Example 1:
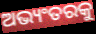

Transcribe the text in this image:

ଅଭ୍ୟଂତରକୁ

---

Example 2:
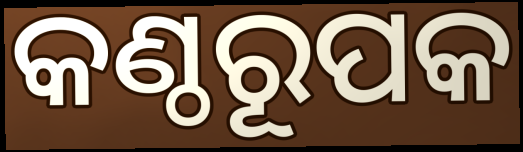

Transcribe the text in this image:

କଣ୍ଠରୂପକ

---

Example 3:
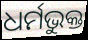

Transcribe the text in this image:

ଧର୍ମଭୁକ୍ତ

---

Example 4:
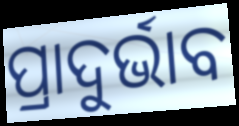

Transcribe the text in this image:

ପ୍ରାଦୁର୍ଭାବ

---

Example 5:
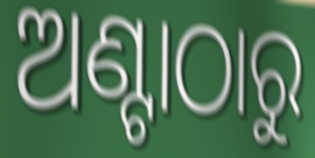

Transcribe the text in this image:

ଅଣ୍ଟାଠାରୁ